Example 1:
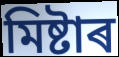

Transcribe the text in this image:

মিষ্টাৰ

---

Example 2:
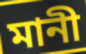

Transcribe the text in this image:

মানী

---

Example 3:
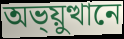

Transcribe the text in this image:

অভ্য়ুত্থানে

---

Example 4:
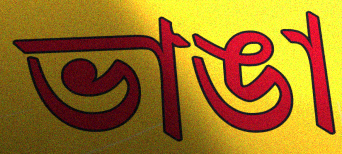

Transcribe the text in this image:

ভাঙা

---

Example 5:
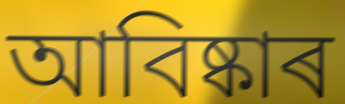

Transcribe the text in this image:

আবিষ্কাৰ